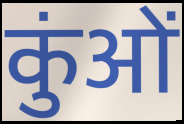
कुंओं